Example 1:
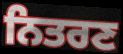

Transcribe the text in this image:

ਨਿਤਰਣ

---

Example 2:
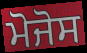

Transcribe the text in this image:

ਮੋਜੋਸ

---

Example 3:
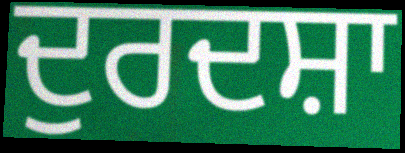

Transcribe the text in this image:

ਦੁਰਦਸ਼ਾ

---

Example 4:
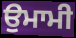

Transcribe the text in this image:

ਉਮਾਮੀ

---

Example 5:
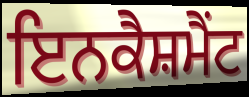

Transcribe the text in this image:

ਇਨਕੈਸ਼ਮੈਂਟ